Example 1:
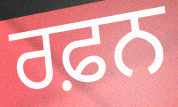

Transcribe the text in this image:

ਰਫ਼ਨ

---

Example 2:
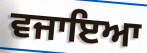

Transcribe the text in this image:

ਵਜਾਇਆ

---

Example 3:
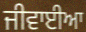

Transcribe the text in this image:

ਜੀਵਾਈਆ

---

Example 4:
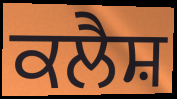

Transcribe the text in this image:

ਕਲੈਸ਼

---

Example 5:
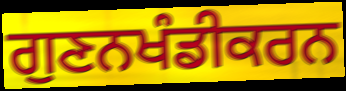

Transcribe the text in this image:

ਗੁਣਨਖੰਡੀਕਰਨ